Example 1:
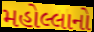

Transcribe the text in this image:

મહોલ્લાનો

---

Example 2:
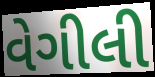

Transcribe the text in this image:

વેગીલી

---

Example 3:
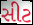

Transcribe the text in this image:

સીટ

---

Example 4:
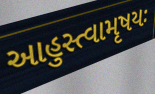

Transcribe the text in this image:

આહુસ્ત્વામૃષયઃ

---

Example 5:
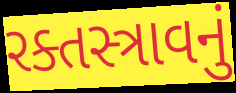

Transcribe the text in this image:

રક્તસ્ત્રાવનું